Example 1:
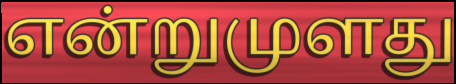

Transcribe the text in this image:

என்றுமுளது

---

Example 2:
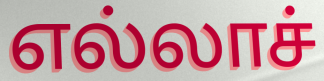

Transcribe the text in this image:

எல்லாச்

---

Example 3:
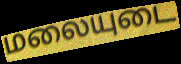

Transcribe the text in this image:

மலையுடை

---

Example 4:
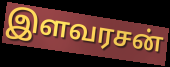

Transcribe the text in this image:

இளவரசன்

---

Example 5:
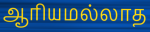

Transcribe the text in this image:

ஆரியமல்லாத